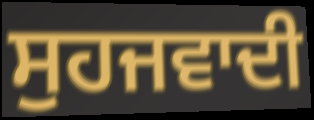
ਸੁਹਜਵਾਦੀ